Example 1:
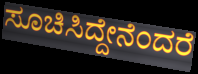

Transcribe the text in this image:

ಸೂಚಿಸಿದ್ದೇನೆಂದರೆ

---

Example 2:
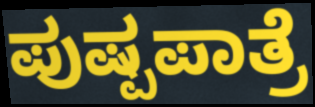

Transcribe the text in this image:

ಪುಷ್ಪಪಾತ್ರೆ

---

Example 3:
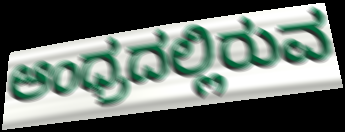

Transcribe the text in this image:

ಆಂಧ್ರದಲ್ಲಿರುವ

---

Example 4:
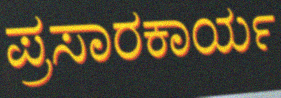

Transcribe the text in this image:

ಪ್ರಸಾರಕಾರ್ಯ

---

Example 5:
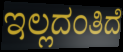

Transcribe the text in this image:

ಇಲ್ಲದಂತಿದೆ